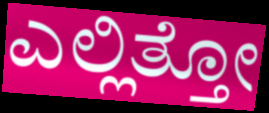
ಎಲ್ಲಿತ್ತೋ